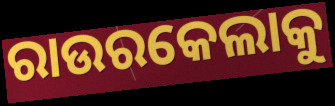
ରାଉରକେଲାକୁ